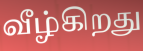
வீழ்கிறது